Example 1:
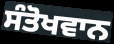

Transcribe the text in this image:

ਸੰਤੋਖਵਾਨ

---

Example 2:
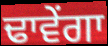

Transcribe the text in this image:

ਢਾਵੇਂਗਾ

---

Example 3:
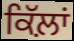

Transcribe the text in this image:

ਕਿੱਲ਼ਾਂ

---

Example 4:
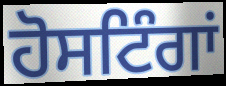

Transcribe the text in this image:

ਹੋਸਟਿੰਗਾਂ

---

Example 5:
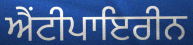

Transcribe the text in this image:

ਐਂਟੀਪਾਇਰੀਨ